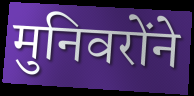
मुनिवरोंने